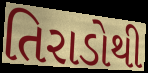
તિરાડોથી